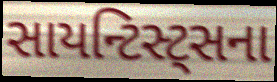
સાયન્ટિસ્ટ્સના